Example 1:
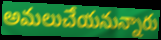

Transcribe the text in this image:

అమలుచేయనున్నారు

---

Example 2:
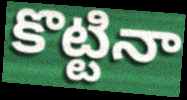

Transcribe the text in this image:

కొట్టినా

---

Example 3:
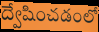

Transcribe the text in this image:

ద్వేషించడంలో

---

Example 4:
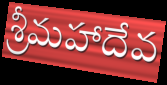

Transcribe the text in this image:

శ్రీమహాదేవ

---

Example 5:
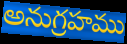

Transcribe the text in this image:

అనుగ్రహము